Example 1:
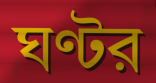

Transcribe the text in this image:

ঘণ্টর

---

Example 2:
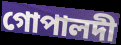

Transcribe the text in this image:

গোপালদী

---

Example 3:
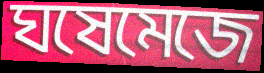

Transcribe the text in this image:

ঘষেমেজে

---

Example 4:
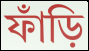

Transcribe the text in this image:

ফাঁড়ি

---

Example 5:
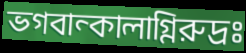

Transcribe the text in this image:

ভগবান্কালাগ্নিরুদ্রঃ